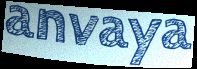
anvaya